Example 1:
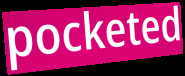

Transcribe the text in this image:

pocketed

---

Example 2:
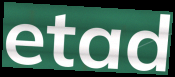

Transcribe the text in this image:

etad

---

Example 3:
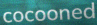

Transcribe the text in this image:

cocooned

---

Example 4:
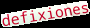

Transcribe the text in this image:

defixiones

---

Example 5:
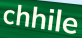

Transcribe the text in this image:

chhile